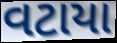
વટાયા